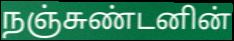
நஞ்சுண்டனின்